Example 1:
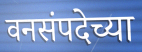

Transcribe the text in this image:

वनसंपदेच्या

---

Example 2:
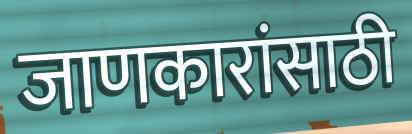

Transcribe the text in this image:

जाणकारांसाठी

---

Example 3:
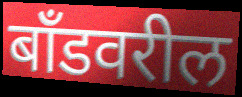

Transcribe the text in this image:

बॉंडवरील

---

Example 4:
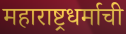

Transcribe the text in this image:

महाराष्ट्रधर्माची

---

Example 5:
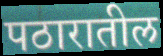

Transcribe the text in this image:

पठारातील